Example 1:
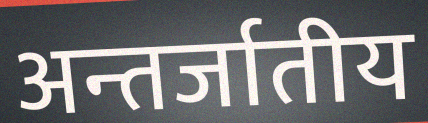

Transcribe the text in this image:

अन्तर्जातीय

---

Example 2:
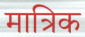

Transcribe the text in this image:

मात्रिक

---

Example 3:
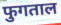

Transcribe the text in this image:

फुगताल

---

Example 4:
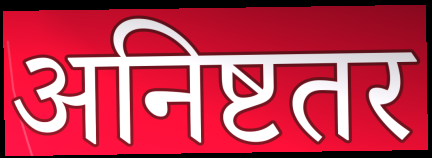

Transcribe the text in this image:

अनिष्टतर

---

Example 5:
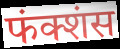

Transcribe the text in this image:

फंक्शंस